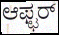
ಆಫ್ಟರ್